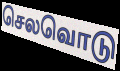
செலவொடு